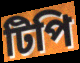
টিপি